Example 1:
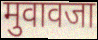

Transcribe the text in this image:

मुवावजा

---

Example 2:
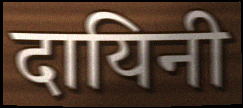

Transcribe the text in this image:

दायिनी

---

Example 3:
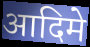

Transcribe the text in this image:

आदिमे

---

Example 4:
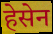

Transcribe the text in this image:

हेसेन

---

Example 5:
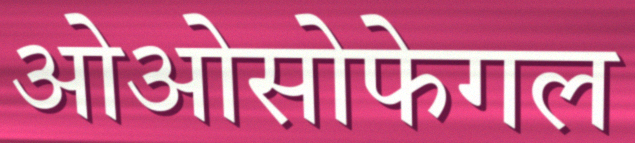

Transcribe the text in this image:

ओओसोफेगल